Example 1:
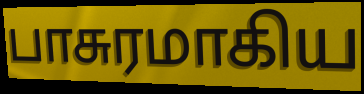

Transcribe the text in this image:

பாசுரமாகிய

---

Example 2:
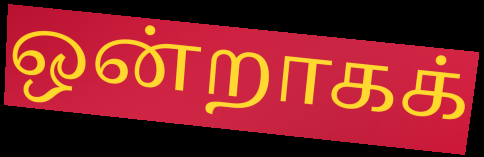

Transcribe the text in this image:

ஒன்றாகக்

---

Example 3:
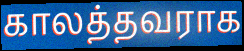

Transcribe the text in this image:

காலத்தவராக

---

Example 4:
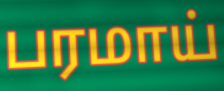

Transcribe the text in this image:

பரமாய்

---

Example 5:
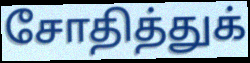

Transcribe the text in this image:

சோதித்துக்